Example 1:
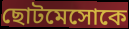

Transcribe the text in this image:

ছোটমেসোকে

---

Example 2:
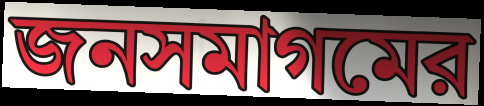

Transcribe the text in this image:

জনসমাগমের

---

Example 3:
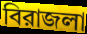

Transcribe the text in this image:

বিরাজলা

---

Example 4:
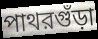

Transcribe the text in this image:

পাথরগুঁড়া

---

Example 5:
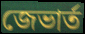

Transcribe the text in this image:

জেভার্ত